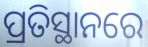
ପ୍ରତିସ୍ଥାନରେ